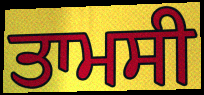
ਤਾਮਸੀ